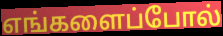
எங்களைப்போல்